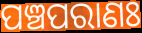
ପଞ୍ଚପରାଣଃ